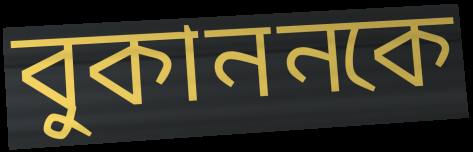
বুকাননকে